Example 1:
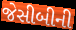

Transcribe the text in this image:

જેસીબીની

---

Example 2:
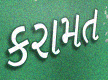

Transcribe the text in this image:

કરામત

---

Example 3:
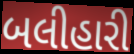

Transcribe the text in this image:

બલીહારી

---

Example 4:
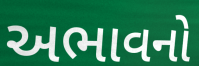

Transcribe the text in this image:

અભાવનો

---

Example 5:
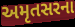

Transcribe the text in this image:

અમૃતસરના